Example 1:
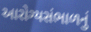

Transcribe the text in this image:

આરોગ્યસંભાળનું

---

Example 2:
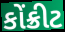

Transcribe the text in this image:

કોંક્રીટ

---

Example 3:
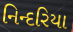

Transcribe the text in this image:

નિન્દરિયા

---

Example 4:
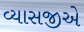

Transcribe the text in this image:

વ્યાસજીએ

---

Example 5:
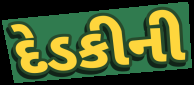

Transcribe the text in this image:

દેડકીની